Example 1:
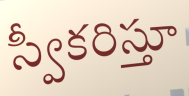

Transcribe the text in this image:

స్వీకరిస్తూ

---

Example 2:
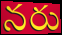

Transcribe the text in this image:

నరు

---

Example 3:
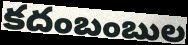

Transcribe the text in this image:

కదంబంబుల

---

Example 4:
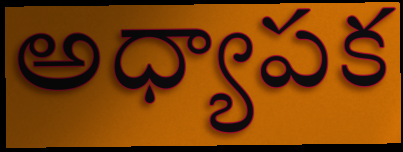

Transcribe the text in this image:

అధ్యాపక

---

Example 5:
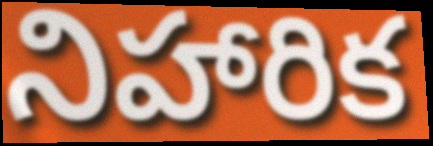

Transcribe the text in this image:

నిహారిక